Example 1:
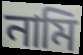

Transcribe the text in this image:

নামি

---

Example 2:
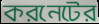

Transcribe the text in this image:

করনেটের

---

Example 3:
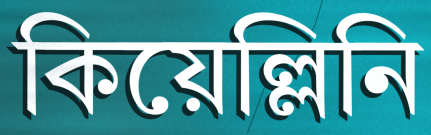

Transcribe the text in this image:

কিয়েল্লিনি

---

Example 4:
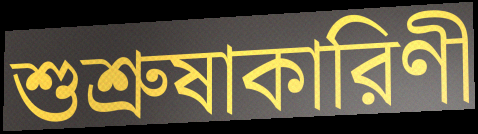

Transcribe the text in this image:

শুশ্রুষাকারিণী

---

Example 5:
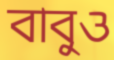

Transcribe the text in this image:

বাবুও